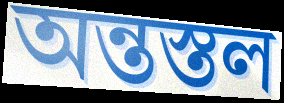
অন্তস্তল